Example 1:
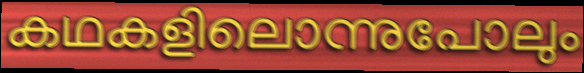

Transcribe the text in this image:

കഥകളിലൊന്നുപോലും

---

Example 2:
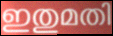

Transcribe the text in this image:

ഇതുമതി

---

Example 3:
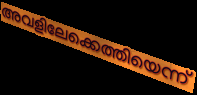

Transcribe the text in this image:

അവളിലേക്കെത്തിയെന്ന്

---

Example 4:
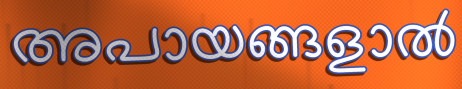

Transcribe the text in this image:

അപായങ്ങളാൽ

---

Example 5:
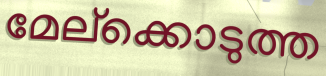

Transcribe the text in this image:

മേല്ക്കൊടുത്ത